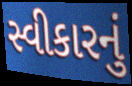
સ્વીકારનું